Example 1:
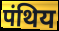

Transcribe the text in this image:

पंथिय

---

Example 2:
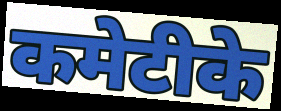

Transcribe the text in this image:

कमेटीके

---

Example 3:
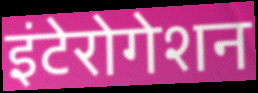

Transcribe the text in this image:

इंटेरोगेशन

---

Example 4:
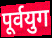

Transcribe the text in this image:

पूर्वयुग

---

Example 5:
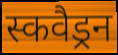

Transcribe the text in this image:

स्कवैड्रन